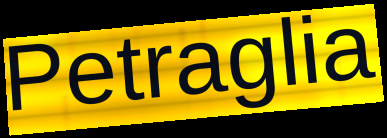
Petraglia